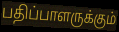
பதிப்பாளருக்கும்